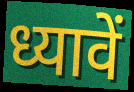
ध्यावें